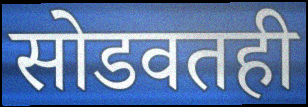
सोडवतही